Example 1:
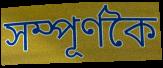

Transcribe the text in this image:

সম্পূৰ্ণকৈ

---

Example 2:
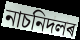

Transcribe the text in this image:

নাচনিদলৰ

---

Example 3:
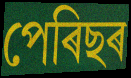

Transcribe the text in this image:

পেৰিছৰ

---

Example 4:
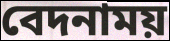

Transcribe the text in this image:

বেদনাময়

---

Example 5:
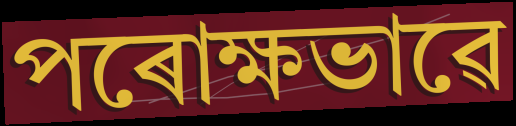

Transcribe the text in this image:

পৰোক্ষভাৱে